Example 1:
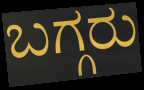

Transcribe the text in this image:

ಬಗ್ಗರು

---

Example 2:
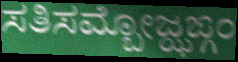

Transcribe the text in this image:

ಸತಿಸಮ್ಬೋಜ್ಝಙ್ಗಂ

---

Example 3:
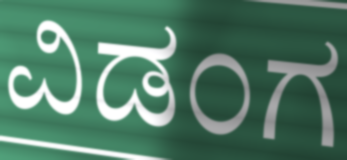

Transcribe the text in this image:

ವಿಡಂಗ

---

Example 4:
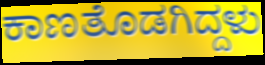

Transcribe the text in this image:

ಕಾಣತೊಡಗಿದ್ದಳು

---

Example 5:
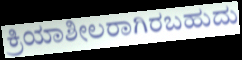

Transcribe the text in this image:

ಕ್ರಿಯಾಶೀಲರಾಗಿರಬಹುದು